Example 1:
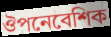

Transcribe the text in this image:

ঔপনেবেশিক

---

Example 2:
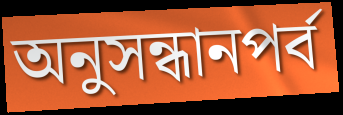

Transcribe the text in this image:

অনুসন্ধানপর্ব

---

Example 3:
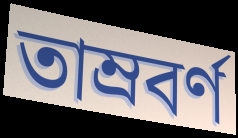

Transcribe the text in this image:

তাম্রবর্ণ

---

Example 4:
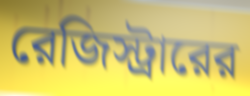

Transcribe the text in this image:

রেজিস্ট্রারের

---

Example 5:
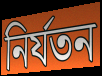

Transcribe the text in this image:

নির্যতন